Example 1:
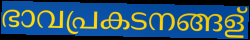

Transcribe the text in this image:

ഭാവപ്രകടനങ്ങള്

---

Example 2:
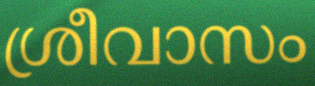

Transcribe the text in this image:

ശ്രീവാസം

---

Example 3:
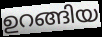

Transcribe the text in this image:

ഉറങ്ങിയ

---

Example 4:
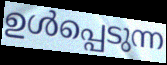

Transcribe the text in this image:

ഉൾപ്പെടുന്ന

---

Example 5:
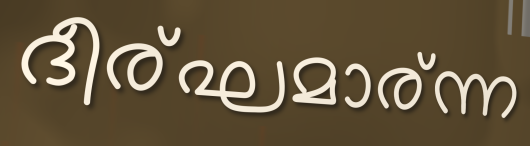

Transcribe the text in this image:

ദീര്ഘമാര്ന്ന